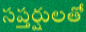
సప్తర్షులతో